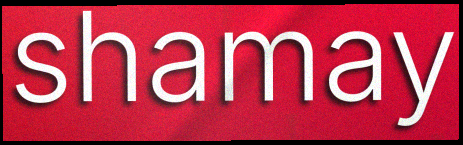
shamay